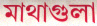
মাথাগুলা